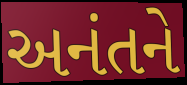
અનંતને